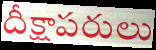
దీక్షాపరులు